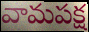
వామపక్ష